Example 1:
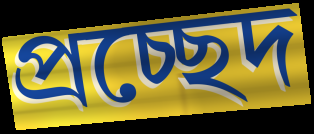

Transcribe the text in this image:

প্রচ্ছেদ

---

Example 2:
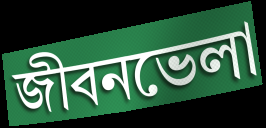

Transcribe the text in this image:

জীবনভেলা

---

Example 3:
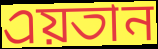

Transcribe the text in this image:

এয়তান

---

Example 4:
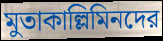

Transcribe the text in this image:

মুতাকাল্লিমিনদের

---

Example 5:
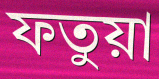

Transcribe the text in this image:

ফতুয়া